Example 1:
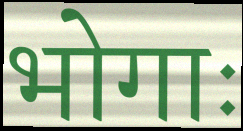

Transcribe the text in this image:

भोगाः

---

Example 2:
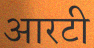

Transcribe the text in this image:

आरटी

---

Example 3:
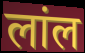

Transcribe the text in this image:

लांल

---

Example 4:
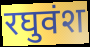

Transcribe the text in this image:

रघुवंश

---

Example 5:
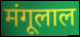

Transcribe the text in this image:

मंगूलाल